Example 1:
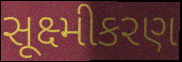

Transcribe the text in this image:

સૂક્ષ્મીકરણ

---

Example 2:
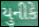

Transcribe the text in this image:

યુનીકે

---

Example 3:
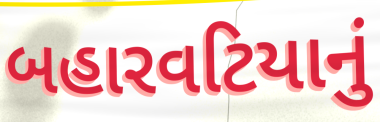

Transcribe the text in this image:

બહારવટિયાનું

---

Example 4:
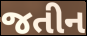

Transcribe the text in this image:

જતીન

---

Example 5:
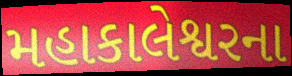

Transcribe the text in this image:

મહાકાલેશ્વરના